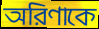
অরিণাকে